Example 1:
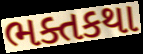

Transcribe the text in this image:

ભક્તકથા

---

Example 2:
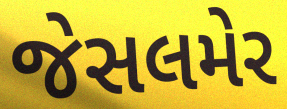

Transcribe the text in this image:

જેસલમેર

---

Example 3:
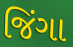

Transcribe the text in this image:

જિંગા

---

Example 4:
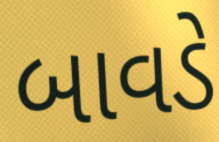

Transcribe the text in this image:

બાવડે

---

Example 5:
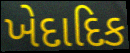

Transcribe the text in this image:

ખેદાદિક